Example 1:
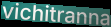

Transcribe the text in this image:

vichitranna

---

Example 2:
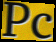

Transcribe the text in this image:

Pc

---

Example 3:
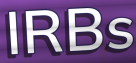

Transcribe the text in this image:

IRBs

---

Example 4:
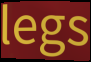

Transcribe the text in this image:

legs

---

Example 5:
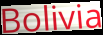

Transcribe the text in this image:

Bolivia